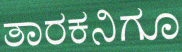
ತಾರಕನಿಗೂ